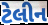
ટેલીન